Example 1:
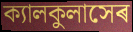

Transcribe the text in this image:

ক্যালকুলাসেৰ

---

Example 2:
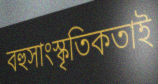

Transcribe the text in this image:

বহুসাংস্কৃতিকতাই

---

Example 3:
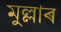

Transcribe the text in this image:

মুল্লাৰ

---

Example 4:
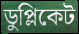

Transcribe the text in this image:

ডুপ্লিকেট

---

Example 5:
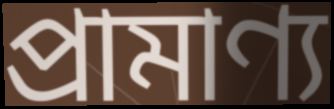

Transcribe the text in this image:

প্ৰামাণ্য